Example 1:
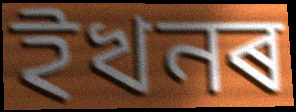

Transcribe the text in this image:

ইখনৰ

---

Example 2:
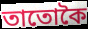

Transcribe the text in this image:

তাতোকৈ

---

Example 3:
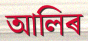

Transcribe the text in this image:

আলিৰ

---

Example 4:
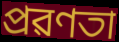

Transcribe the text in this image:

প্ৰৱণতা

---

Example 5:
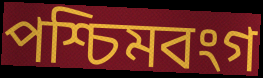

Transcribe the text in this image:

পশ্চিমবংগ